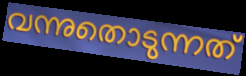
വന്നുതൊടുന്നത്